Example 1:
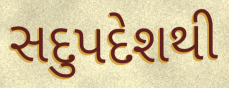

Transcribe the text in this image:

સદુપદેશથી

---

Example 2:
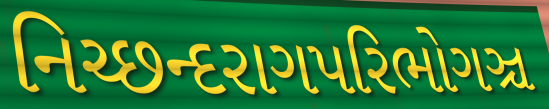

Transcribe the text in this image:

નિચ્છન્દરાગપરિભોગઞ્ચ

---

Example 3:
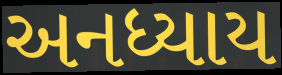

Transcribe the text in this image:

અનધ્યાય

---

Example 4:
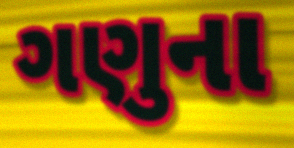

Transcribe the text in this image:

ગણુના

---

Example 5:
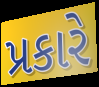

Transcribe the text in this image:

પ્રકારે